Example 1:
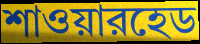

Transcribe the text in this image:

শাওয়ারহেড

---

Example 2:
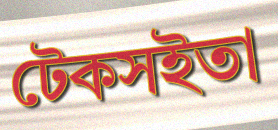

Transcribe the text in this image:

টেকসইতা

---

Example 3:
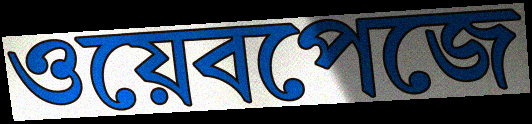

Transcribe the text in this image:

ওয়েবপেজে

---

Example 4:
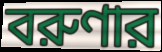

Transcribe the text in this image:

বরুণার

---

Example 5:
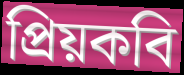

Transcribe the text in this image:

প্রিয়কবি